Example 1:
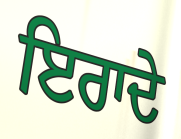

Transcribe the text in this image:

ਇਰਾਦੇ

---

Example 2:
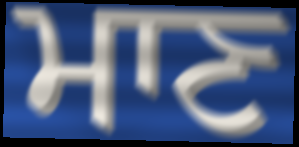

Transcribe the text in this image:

ਮਾਣ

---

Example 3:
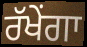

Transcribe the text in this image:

ਰੱਖੇਂਗਾ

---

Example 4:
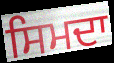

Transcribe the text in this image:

ਸਿਮਦਾ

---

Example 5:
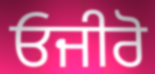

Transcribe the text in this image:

ਓਜੀਰੋ